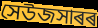
সেউজসাৰৰ